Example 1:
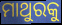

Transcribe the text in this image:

ମାଥୁରକୁ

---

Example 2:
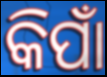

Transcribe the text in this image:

କିପାଁ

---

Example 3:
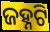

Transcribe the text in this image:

ଜହ୍ନଟି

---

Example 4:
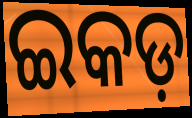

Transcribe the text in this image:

ଇକଡ଼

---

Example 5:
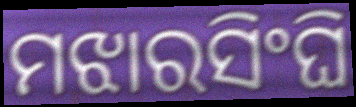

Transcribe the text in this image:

ମଝାରସିଂଘି